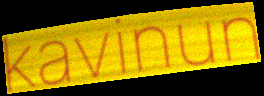
kavinun